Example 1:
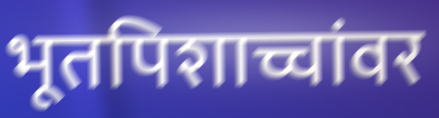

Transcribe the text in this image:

भूतपिशाच्चांवर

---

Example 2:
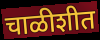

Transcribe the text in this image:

चाळीशीत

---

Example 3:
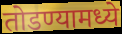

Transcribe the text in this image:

तोडण्यामध्ये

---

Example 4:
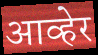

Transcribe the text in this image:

आव्हेर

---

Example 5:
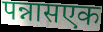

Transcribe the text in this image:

पन्नासएक